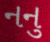
નનુ